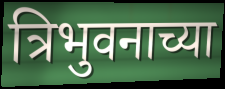
त्रिभुवनाच्या